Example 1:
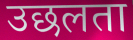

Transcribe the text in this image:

उछलता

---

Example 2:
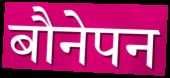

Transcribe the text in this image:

बौनेपन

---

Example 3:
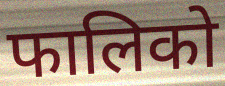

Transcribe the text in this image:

फालिको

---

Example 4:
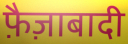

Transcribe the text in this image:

फ़ैज़ाबादी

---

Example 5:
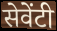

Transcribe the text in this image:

सेवेंटी